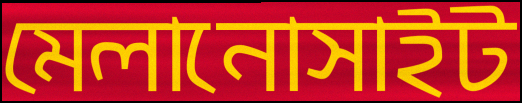
মেলানোসাইট